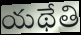
యథేతి